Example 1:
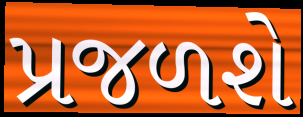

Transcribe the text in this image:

પ્રજળશે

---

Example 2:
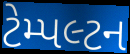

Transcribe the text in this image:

ટેમ્પલ્ટન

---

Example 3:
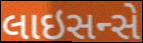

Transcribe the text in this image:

લાઇસન્સે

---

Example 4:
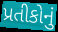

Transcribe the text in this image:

પ્રતીકોનું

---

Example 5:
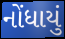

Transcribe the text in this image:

નોંધાયું